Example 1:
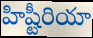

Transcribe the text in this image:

హిష్టీరియా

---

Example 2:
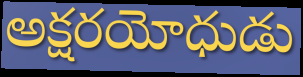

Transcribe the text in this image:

అక్షరయోధుడు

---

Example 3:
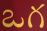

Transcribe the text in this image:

ఒగ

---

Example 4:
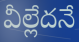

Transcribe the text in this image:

వీల్లేదనే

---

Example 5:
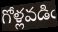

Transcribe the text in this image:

గోళ్లవడిఁ